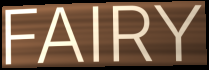
FAIRY